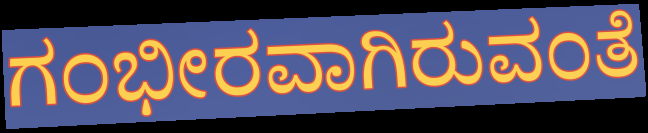
ಗಂಭೀರವಾಗಿರುವಂತೆ